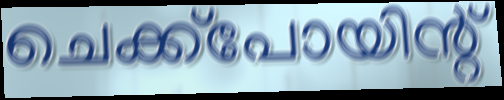
ചെക്ക്പോയിന്റ്